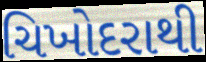
ચિખોદરાથી